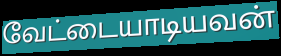
வேட்டையாடியவன்